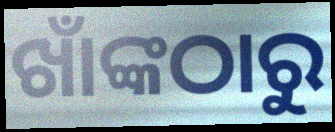
ଖାଁଙ୍କଠାରୁ